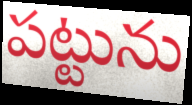
పట్టును